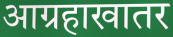
आग्रहाखातर